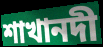
শাখানদী